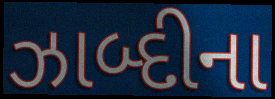
ઝાબ્દીના